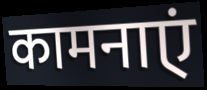
कामनाएं